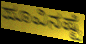
ಹೂವಿನಷ್ಟೆ